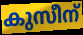
കുസീന്